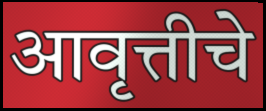
आवृत्तीचे